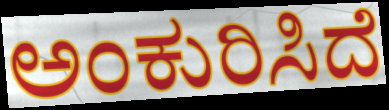
ಅಂಕುರಿಸಿದೆ